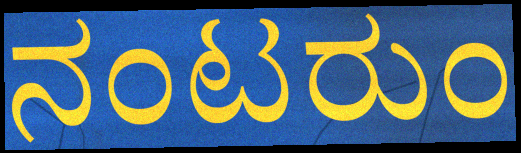
ನಂಟರುಂ